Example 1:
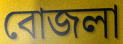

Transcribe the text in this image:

বোজলা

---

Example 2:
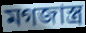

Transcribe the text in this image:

মগজাস্ত্র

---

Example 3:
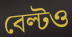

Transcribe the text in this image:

বেল্টও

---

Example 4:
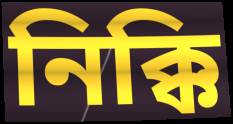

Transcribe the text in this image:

নিক্কি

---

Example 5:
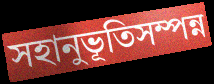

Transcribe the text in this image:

সহানুভূতিসম্পন্ন